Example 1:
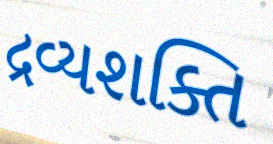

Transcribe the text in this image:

દ્રવ્યશક્તિ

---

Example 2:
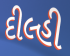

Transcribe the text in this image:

દીલ્હી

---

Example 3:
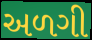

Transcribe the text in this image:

અળગી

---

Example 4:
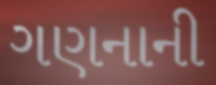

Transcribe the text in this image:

ગણનાની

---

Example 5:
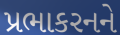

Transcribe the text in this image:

પ્રભાકરનને